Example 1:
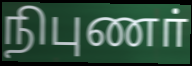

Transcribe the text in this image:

நிபுணர்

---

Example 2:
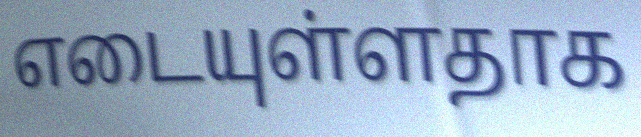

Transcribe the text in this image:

எடையுள்ளதாக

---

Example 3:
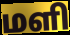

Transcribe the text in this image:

மளி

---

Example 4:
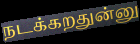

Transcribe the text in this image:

நடக்கறதுன்னு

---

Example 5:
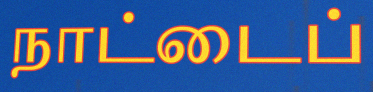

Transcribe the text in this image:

நாட்டைப்